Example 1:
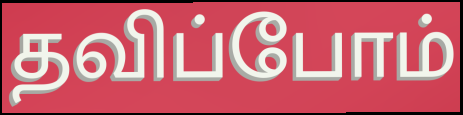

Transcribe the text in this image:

தவிப்போம்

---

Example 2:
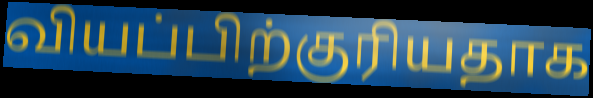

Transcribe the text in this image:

வியப்பிற்குரியதாக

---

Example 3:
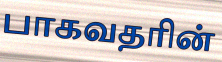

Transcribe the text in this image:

பாகவதரின்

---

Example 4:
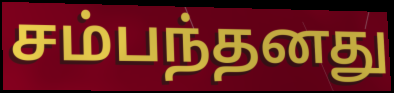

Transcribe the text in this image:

சம்பந்தனது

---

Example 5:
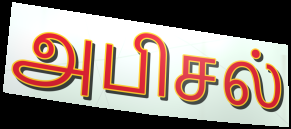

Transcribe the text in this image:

அபிசல்